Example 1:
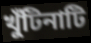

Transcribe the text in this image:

খুঁটিনাটি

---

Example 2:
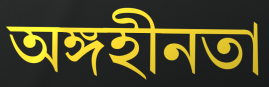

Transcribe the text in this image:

অঙ্গহীনতা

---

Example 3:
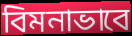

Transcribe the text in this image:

বিমনাভাবে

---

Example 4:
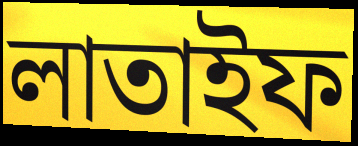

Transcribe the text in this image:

লাতাইফ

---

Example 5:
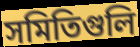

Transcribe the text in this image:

সমিতিগুলি